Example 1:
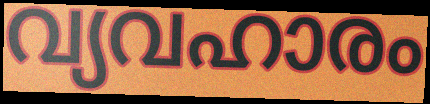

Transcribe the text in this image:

വ്യവഹാരം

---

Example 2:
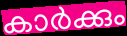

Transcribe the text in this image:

കാർക്കും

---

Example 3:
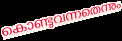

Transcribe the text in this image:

കൊണ്ടുവന്നതെന്നും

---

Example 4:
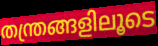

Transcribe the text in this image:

തന്ത്രങ്ങളിലൂടെ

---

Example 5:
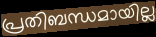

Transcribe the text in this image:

പ്രതിബന്ധമായില്ല